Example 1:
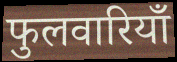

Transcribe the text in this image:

फुलवारियाँ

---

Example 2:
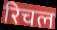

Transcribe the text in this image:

रिचल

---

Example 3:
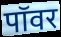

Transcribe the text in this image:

पॉवर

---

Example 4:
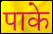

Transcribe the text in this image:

पाके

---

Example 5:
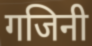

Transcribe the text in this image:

गजिनी